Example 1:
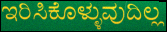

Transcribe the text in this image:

ಇರಿಸಿಕೊಳ್ಳುವುದಿಲ್ಲ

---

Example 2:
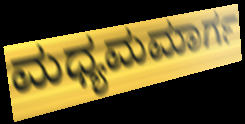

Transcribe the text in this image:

ಮಧ್ಯಮಮಾರ್ಗ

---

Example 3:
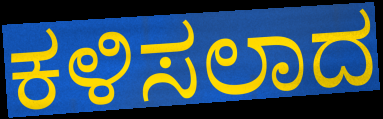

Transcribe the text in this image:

ಕಳಿಸಲಾದ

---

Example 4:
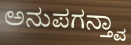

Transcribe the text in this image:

ಅನುಪಗನ್ತ್ವಾ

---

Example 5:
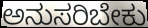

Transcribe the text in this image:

ಅನುಸರಿಬೇಕು